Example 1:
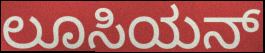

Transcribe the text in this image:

ಲೂಸಿಯನ್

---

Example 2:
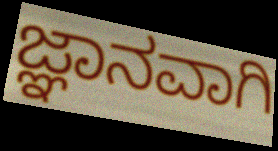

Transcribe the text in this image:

ಜ್ಞಾನವಾಗಿ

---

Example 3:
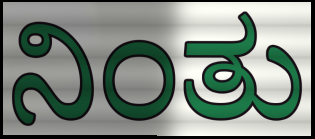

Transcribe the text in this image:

ನಿಂತು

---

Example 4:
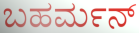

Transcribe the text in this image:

ಬಹರ್ಮನ್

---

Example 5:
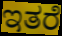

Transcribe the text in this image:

ಇತರೆ